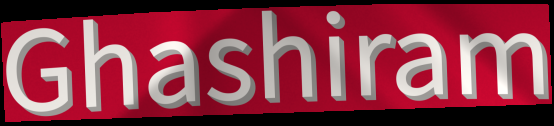
Ghashiram